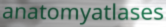
anatomyatlases